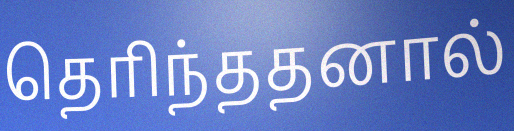
தெரிந்ததனால்